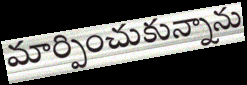
మార్పించుకున్నాను